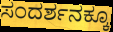
ಸಂದರ್ಶನಕ್ಕೂ